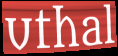
uthal